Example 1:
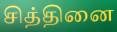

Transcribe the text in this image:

சித்தினை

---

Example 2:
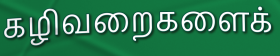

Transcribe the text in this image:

கழிவறைகளைக்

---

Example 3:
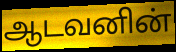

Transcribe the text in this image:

ஆடவனின்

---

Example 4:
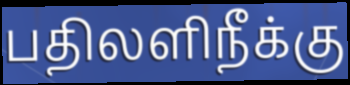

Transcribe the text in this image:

பதிலளிநீக்கு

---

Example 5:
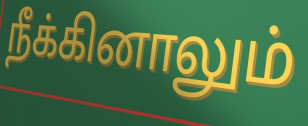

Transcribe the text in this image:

நீக்கினாலும்